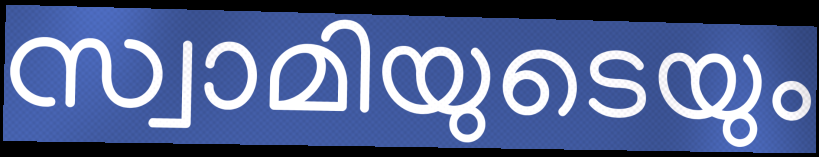
സ്വാമിയുടെയും